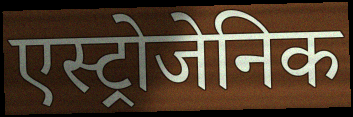
एस्ट्रोजेनिक